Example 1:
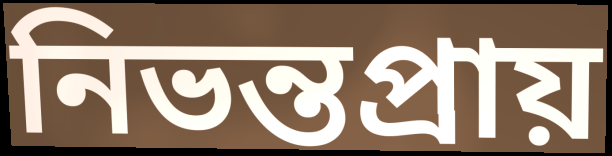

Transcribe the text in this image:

নিভন্তপ্রায়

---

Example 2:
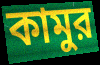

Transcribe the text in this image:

কামুর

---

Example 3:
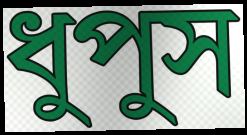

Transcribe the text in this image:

ধুপুস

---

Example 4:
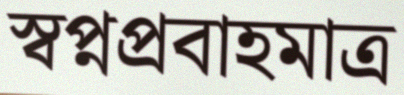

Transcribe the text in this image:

স্বপ্নপ্রবাহমাত্র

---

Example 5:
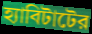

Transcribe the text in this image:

হ্যাবিটাটের